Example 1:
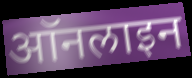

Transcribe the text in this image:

ऑनलाइन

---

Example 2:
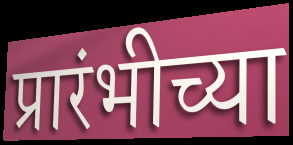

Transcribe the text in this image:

प्रारंभीच्या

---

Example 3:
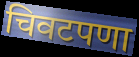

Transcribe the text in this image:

चिवटपणा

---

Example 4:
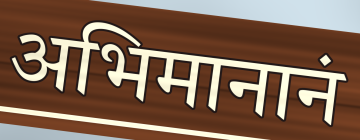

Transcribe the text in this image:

अभिमानानं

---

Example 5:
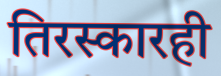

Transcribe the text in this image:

तिरस्कारही